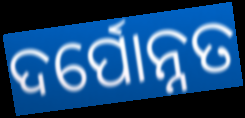
ଦର୍ପୋନ୍ନତ